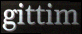
gittim